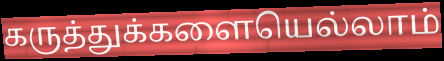
கருத்துக்களையெல்லாம்